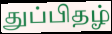
துப்பிதழ்